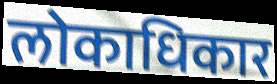
लोकाधिकार